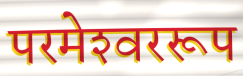
परमेश्वररूप